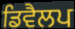
ਡਿਵੈਲਪ